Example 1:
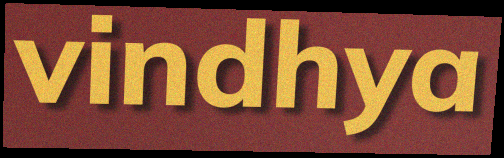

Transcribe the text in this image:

vindhya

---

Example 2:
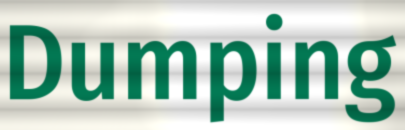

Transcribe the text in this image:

Dumping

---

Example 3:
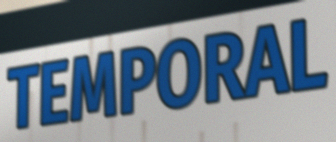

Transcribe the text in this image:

TEMPORAL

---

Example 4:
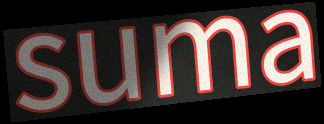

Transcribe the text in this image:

suma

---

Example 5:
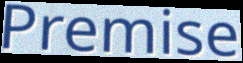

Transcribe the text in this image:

Premise